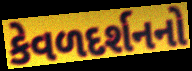
કેવળદર્શનનો